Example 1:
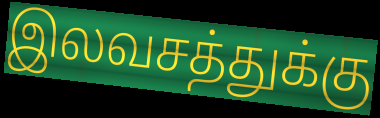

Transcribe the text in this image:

இலவசத்துக்கு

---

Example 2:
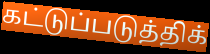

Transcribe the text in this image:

கட்டுப்படுத்திக்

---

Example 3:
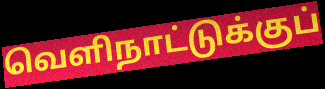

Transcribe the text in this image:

வெளிநாட்டுக்குப்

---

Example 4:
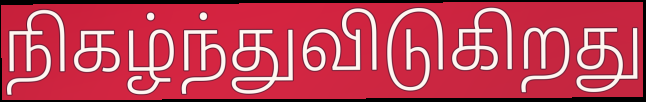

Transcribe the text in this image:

நிகழ்ந்துவிடுகிறது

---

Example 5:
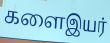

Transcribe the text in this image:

களைஇயர்